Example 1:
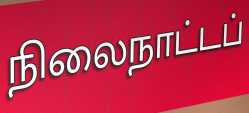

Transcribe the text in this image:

நிலைநாட்டப்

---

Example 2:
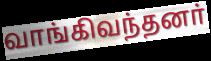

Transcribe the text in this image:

வாங்கிவந்தனர்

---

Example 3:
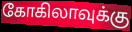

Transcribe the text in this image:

கோகிலாவுக்கு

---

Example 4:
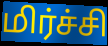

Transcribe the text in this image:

மிர்ச்சி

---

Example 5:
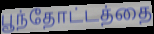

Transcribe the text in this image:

பூந்தோட்டத்தை